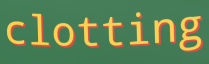
clotting